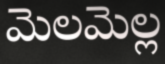
మెలమెల్ల